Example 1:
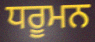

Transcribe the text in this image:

ਧਰੂਮਨ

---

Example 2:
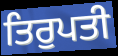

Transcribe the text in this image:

ਤਿਰੁਪਤੀ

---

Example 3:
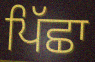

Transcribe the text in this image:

ਪਿੱਛਾ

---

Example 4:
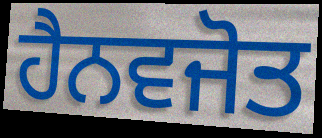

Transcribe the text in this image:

ਹੈਨਵਜੋਤ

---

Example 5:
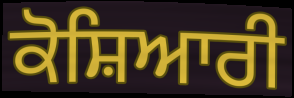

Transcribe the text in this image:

ਕੋਸ਼ਿਆਰੀ